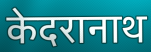
केदरानाथ